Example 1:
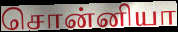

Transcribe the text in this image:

சொன்னியா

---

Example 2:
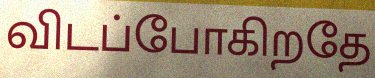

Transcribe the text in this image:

விடப்போகிறதே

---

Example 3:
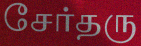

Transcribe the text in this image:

சேர்தரு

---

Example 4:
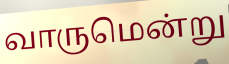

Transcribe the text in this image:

வாருமென்று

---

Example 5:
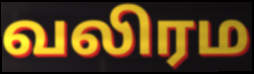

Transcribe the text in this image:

வலிரம